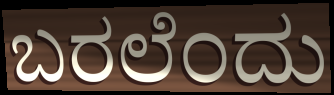
ಬರಲೆಂದು